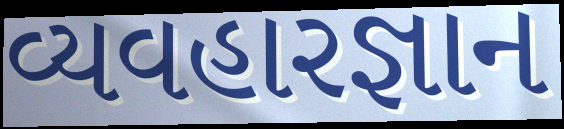
વ્યવહારજ્ઞાન